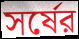
সর্ষের